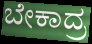
ಬೇಕಾದ್ರ